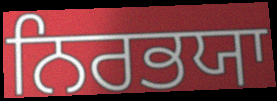
ਨਿਰਭਯਾ